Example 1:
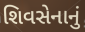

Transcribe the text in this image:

શિવસેનાનું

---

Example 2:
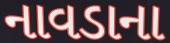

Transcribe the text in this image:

નાવડાના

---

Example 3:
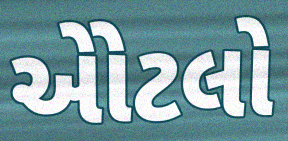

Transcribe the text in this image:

એોટલો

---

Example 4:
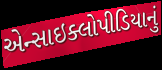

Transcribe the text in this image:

એન્સાઇક્લોપીડિયાનું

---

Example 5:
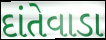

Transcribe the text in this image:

દાંતેવાડા